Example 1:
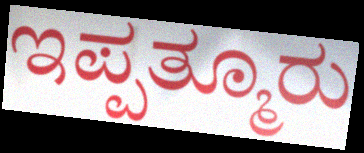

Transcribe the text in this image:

ಇಪ್ಪತ್ಮೂರು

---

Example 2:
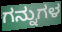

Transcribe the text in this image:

ಗನ್ನುಗಳ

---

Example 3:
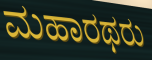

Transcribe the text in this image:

ಮಹಾರಥರು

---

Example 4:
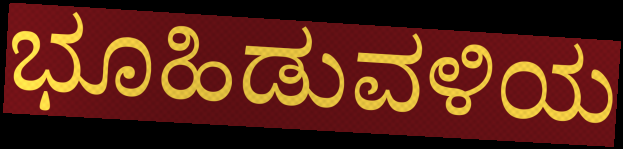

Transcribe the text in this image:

ಭೂಹಿಡುವಳಿಯ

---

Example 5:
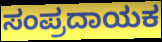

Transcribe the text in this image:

ಸಂಪ್ರದಾಯಕ